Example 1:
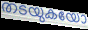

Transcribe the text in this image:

തടയുകയോ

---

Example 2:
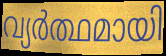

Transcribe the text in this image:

വ്യർത്ഥമായി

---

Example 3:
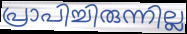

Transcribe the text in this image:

പ്രാപിച്ചിരുന്നില്ല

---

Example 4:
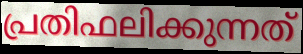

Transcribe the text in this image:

പ്രതിഫലിക്കുന്നത്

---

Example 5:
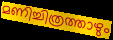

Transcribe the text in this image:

മണിച്ചിത്രത്താഴും